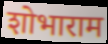
शोभाराम